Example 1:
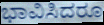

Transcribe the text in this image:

ಭಾವಿಸಿದರೂ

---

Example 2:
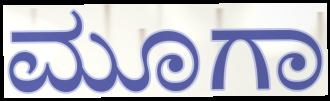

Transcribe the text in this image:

ಮೂಗಾ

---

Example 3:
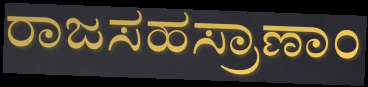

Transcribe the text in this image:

ರಾಜಸಹಸ್ರಾಣಾಂ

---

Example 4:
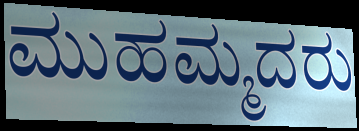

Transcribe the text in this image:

ಮುಹಮ್ಮದರು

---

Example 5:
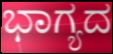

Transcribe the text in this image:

ಭಾಗ್ಯದ